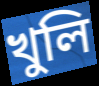
খুলি